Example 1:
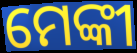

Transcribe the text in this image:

ମେଙ୍କୀ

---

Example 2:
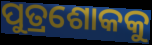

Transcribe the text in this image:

ପୁତ୍ରଶୋକକୁ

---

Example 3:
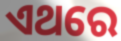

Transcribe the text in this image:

ଏଥରେ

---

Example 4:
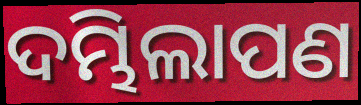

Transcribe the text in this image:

ଦମ୍ଭିଲାପଣ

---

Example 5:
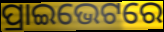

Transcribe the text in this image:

ପ୍ରାଇଭେଟରେ